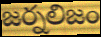
జర్నలిజం